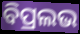
ବିପ୍ରଲଭ